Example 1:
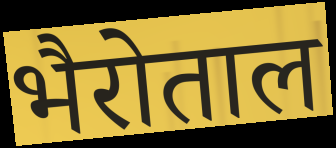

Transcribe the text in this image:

भैरोताल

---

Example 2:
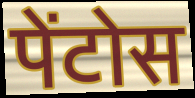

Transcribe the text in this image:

पेंटोस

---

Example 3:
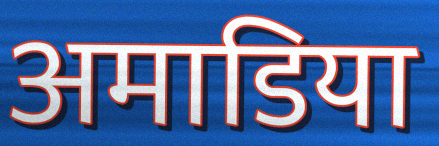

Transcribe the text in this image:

अमाडिया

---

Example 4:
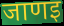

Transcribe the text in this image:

जाणइ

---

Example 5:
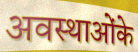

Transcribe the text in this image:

अवस्थाओंके